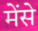
मेंसे